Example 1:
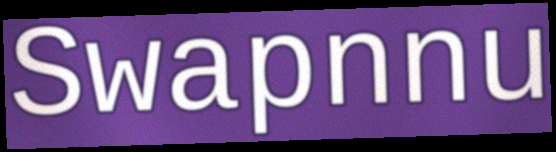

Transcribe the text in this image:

Swapnnu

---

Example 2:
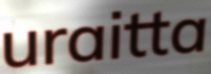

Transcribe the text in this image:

uraitta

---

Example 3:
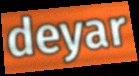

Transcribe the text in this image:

deyar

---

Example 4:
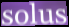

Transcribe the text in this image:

solus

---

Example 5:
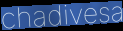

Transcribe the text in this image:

chadivesa